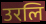
उरलि